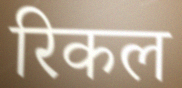
रिकल